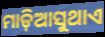
ମାଡ଼ିଆସୁଥାଏ